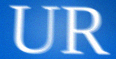
UR